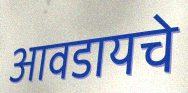
आवडायचे